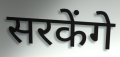
सरकेंगे